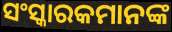
ସଂସ୍କାରକମାନଙ୍କ